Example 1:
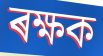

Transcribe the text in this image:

ৰক্ষক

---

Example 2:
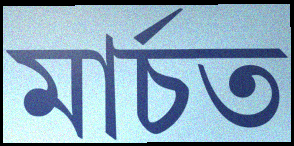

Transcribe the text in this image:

মাৰ্চত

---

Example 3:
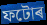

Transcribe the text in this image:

ফটোৰ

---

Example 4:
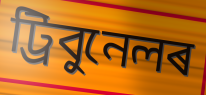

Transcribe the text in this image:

ট্ৰিবুনেলৰ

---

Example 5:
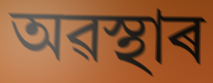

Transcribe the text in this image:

অৱস্থাৰ